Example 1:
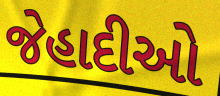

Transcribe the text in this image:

જેહાદીઓ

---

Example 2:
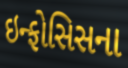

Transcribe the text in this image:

ઇન્ફોસિસના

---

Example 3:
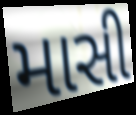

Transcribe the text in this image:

માસી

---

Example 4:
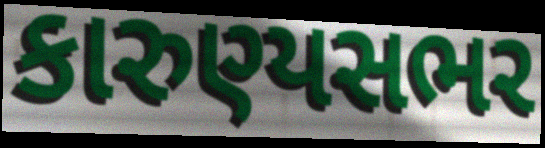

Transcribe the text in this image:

કારુણ્યસભર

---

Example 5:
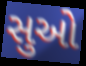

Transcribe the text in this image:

સુઓ